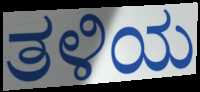
ತಳಿಯ